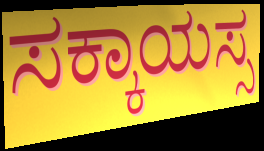
ಸಕ್ಕಾಯಸ್ಸ